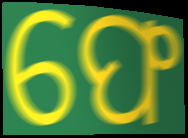
ଫେ